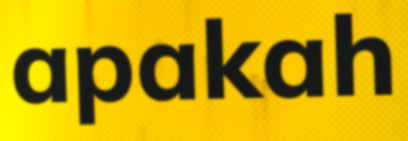
apakah